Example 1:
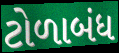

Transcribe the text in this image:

ટોળાબંધ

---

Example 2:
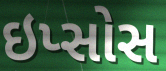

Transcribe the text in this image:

ઇપ્સોસ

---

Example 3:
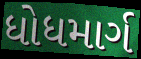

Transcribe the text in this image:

ધોધમાર્ગ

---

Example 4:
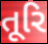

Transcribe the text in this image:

તૂરિ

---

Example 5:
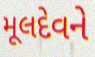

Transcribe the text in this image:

મૂલદેવને